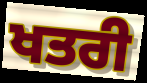
ਖਤਰੀ